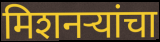
मिशनऱ्यांचा